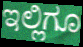
ಇಲ್ಲಿಗೂ